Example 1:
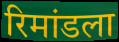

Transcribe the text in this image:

रिमांडला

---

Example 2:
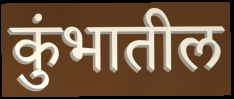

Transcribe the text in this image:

कुंभातील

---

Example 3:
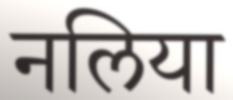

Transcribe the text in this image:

नलिया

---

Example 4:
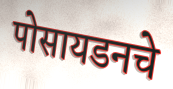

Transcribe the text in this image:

पोसायडनचे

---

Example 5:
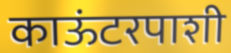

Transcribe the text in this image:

काऊंटरपाशी